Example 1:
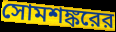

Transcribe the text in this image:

সোমশঙ্করের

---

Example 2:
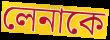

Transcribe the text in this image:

লেনাকে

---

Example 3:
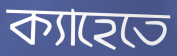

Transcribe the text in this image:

ক্যাহেতে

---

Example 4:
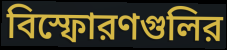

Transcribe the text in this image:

বিস্ফোরণগুলির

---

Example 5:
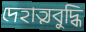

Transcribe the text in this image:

দেহাত্মবুদ্ধি